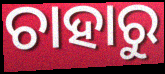
ଚାହାରୁ